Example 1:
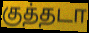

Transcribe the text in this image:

குத்தடா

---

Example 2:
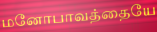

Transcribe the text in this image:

மனோபாவத்தையே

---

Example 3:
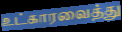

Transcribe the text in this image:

உட்காரவைத்து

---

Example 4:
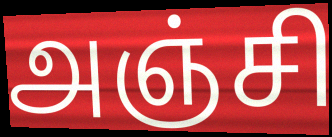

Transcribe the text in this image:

அஞ்சி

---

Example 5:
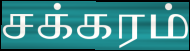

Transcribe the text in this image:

சக்கரம்